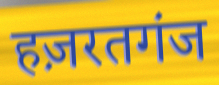
हज़रतगंज